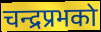
चन्द्रप्रभको